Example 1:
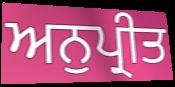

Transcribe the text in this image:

ਅਨੁਪ੍ਰੀਤ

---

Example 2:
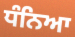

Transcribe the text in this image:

ਧੰਨਿਆ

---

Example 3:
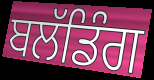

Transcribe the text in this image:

ਬਲੱਡਿੰਗ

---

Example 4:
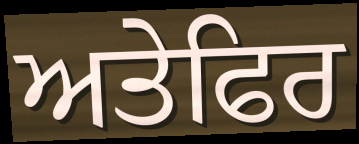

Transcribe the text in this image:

ਅਤੇਫਿਰ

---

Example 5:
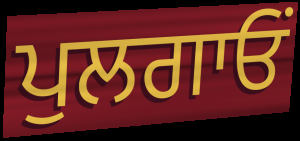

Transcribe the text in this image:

ਪੁਲਗਾਓਂ